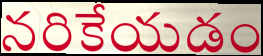
నరికేయడం